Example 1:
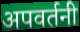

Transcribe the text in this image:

अपवर्तनी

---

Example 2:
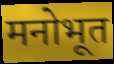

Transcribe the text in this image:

मनोभूत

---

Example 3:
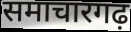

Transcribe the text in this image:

समाचारगढ़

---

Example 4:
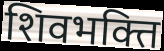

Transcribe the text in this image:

शिवभक्ति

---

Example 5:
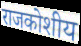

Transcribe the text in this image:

राजकोशीय